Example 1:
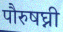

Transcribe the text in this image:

पौरुषघ्नी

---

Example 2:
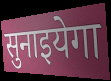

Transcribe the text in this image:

सुनाइयेगा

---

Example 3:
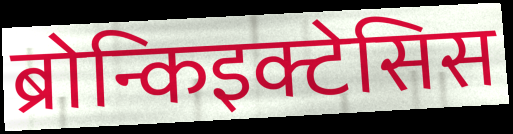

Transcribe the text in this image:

ब्रोन्किइक्टेसिस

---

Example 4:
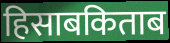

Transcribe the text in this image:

हिसाबकिताब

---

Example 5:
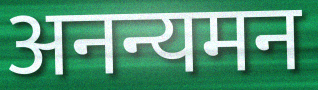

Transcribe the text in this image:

अनन्यमन